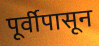
पूर्वीपासून